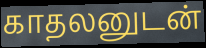
காதலனுடன்